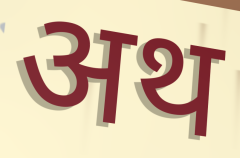
अथ